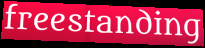
freestanding